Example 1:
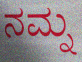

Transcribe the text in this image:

ನಮ್ನ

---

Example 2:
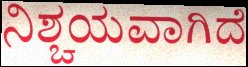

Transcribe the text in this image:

ನಿಶ್ಚಯವಾಗಿದೆ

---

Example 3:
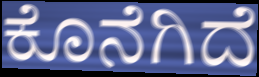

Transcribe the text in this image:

ಕೊನೆಗಿದೆ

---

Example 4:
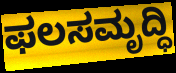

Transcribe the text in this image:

ಫಲಸಮೃದ್ಧಿ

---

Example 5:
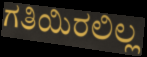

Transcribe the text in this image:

ಗತಿಯಿರಲಿಲ್ಲ